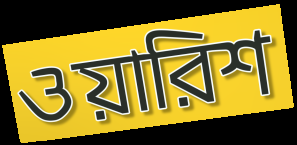
ওয়ারিশ